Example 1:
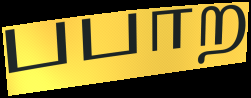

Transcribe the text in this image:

பபாற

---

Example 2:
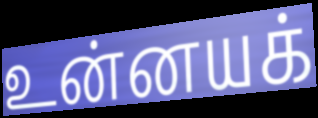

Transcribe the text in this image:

உன்னயக்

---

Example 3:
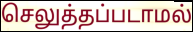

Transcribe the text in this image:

செலுத்தப்படாமல்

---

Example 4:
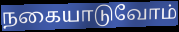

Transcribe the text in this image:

நகையாடுவோம்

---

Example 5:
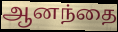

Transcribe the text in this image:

ஆனந்தை